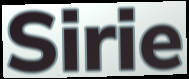
Sirie